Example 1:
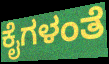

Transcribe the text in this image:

ಕೈಗಳಂತೆ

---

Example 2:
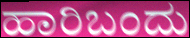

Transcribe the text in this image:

ಹಾರಿಬಂದು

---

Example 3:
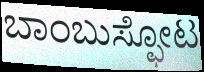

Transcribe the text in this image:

ಬಾಂಬುಸ್ಫೋಟ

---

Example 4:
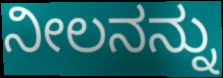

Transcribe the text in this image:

ನೀಲನನ್ನು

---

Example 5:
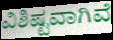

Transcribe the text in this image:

ವಿಶಿಷ್ಟವಾಗಿವೆ